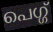
പെഗ്ഗ്